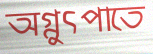
অগ্নুৎপাতে